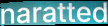
naratted